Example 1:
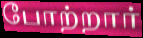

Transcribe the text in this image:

போற்றார்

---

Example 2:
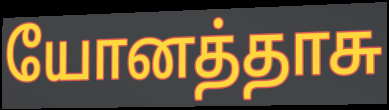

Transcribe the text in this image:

யோனத்தாசு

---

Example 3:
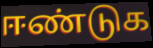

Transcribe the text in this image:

ஈண்டுக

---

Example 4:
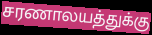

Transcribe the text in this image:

சரணாலயத்துக்கு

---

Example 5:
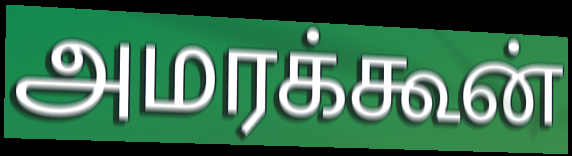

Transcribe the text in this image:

அமரக்கூன்